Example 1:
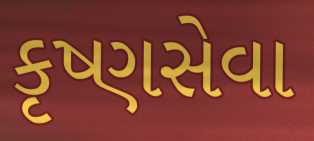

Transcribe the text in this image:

કૃષ્ણસેવા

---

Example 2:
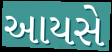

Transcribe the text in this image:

આયસે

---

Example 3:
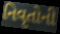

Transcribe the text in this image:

નિવૃતોની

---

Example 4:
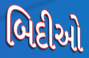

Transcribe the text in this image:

બિદીઓ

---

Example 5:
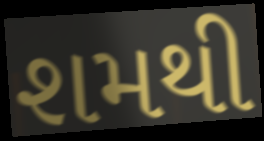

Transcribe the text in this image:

શમથી